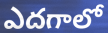
ఎదగాలో